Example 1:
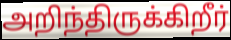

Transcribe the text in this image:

அறிந்திருக்கிறீர்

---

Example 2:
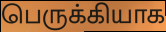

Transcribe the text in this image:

பெருக்கியாக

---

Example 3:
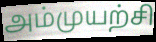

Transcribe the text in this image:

அம்முயற்சி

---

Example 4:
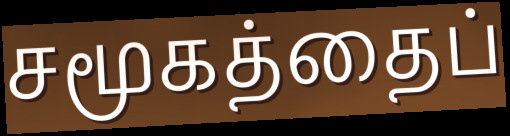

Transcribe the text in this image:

சமூகத்தைப்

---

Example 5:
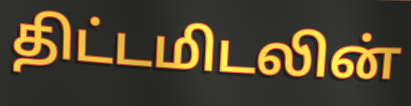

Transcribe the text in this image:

திட்டமிடலின்